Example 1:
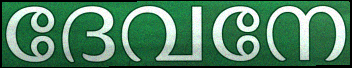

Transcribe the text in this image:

ദേവനേ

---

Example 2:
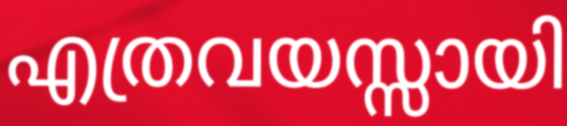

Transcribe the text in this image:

എത്രവയസ്സായി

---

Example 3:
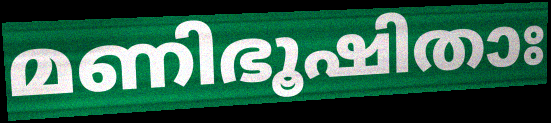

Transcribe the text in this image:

മണിഭൂഷിതാഃ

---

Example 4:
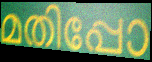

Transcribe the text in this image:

മതിപ്പോ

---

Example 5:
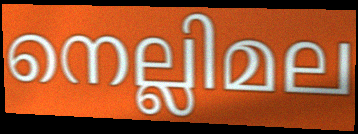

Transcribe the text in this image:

നെല്ലിമല